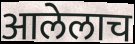
आलेलाच